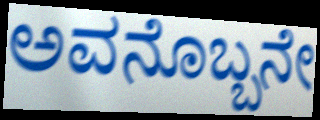
ಅವನೊಬ್ಬನೇ